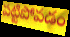
పట్టిపోవడం